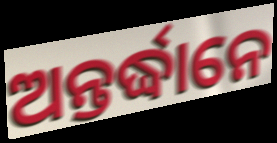
ଅନ୍ତର୍ଦ୍ଧାନେ